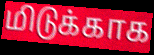
மிடுக்காக